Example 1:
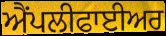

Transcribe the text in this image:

ਐੰਪਲੀਫਾਈਅਰ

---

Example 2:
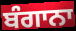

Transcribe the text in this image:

ਬੰਗਾਨਾ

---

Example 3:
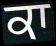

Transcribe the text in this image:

ਕਾ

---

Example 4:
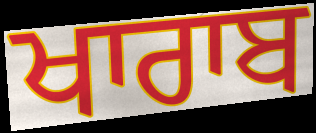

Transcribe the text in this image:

ਖਾਰਾਬ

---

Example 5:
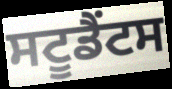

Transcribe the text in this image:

ਸਟੂਡੈਂਟਸ